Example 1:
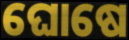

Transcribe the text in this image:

ଘୋଷେ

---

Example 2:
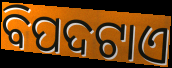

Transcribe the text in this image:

ବିପଦଟାଏ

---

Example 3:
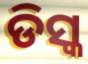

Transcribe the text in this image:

ଡିସ୍କ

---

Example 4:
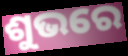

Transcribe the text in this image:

ଶୁଭରେ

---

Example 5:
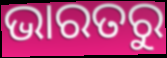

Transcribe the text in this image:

ଭାରତରୁ